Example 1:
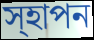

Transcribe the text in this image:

স্হাপন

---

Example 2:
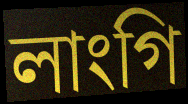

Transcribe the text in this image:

লাংগি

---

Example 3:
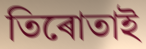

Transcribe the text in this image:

তিৰোতাই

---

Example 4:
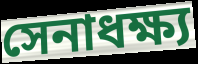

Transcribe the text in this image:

সেনাধক্ষ্য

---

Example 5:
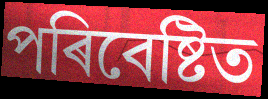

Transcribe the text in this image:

পৰিবেষ্টিত